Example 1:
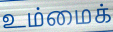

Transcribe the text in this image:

உம்மைக்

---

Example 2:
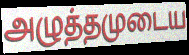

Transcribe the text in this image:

அழுத்தமுடைய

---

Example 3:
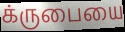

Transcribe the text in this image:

க்ருபையை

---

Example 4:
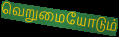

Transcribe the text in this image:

வெறுமையோடும்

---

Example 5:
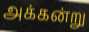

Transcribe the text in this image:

அக்கன்று